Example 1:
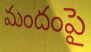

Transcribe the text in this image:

మందంపై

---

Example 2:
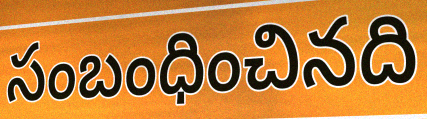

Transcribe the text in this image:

సంబంధించినది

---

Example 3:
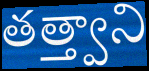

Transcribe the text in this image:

తత్త్వాని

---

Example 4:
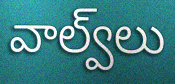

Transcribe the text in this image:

వాల్వ్‌లు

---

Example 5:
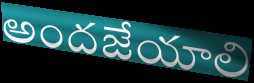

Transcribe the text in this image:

అందజేయాలి